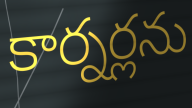
కార్నర్లను